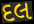
દલ